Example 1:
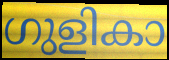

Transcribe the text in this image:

ഗുളികാ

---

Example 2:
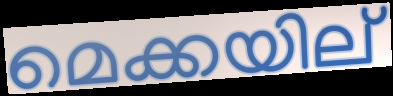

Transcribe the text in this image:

മെക്കയില്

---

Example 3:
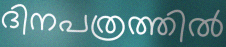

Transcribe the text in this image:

ദിനപത്രത്തിൽ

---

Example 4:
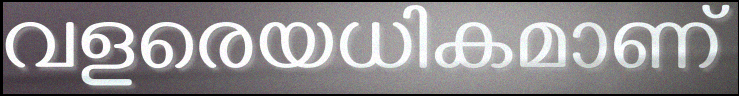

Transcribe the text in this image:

വളരെയധികമാണ്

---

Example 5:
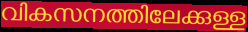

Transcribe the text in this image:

വികസനത്തിലേക്കുള്ള